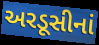
અરડૂસીનાં